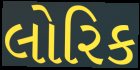
લોરિક